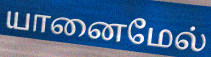
யானைமேல்